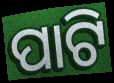
ପାଟି